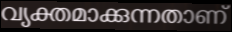
വ്യക്തമാക്കുന്നതാണ്